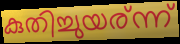
കുതിച്ചുയര്ന്ന്